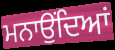
ਮਨਾਉਂਦਿਆਂ